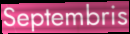
Septembris